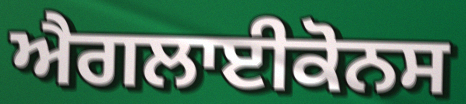
ਐਗਲਾਈਕੋਨਸ